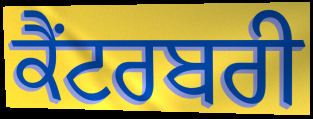
ਕੈਂਟਰਬਰੀ